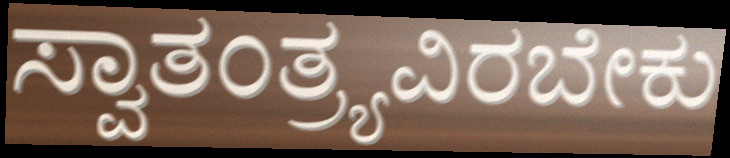
ಸ್ವಾತಂತ್ರ್ಯವಿರಬೇಕು